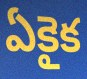
ఏకైక